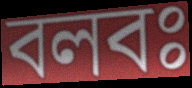
বলবঃ